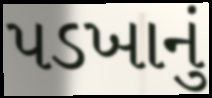
પડખાનું